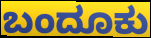
ಬಂದೂಕು